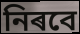
নিৰবে